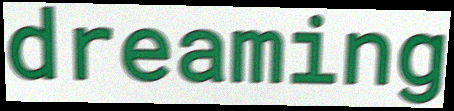
dreaming